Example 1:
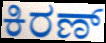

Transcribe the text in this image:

ಕಿರಣ್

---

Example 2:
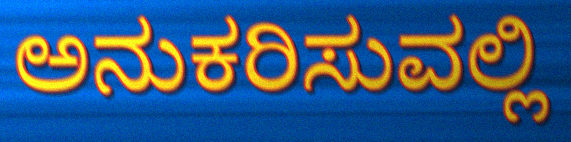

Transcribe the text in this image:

ಅನುಕರಿಸುವಲ್ಲಿ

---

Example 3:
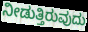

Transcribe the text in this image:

ನೀಡುತ್ತಿರುವುದು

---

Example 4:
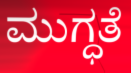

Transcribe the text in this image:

ಮುಗ್ಧತೆ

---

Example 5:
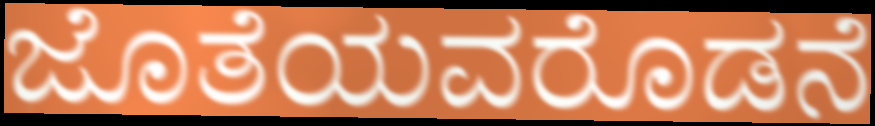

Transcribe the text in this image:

ಜೊತೆಯವರೊಡನೆ